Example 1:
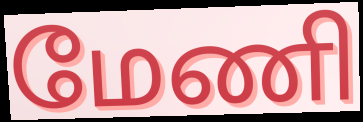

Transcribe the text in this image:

மேணி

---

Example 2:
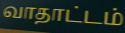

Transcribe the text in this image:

வாதாட்டம்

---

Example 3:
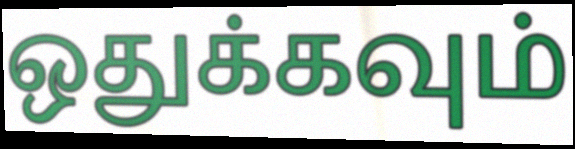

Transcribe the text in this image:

ஒதுக்கவும்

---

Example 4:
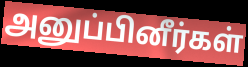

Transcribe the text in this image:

அனுப்பினீர்கள்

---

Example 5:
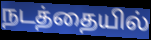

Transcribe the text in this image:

நடத்தையில்